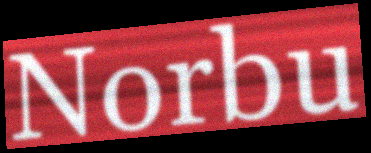
Norbu